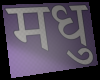
मधु